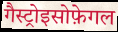
गैस्ट्रोइसोफ़ेगल